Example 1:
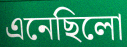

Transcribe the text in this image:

এনেছিলো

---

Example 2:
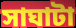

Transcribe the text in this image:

সাঘাটা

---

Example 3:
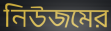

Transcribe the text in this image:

নিউজমের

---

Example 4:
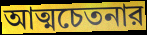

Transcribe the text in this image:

আত্মচেতনার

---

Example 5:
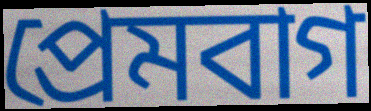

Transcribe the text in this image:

প্রেমবাগ